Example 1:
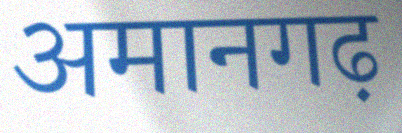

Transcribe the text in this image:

अमानगढ़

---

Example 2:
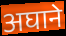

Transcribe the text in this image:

अघाने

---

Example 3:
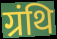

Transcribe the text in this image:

ग्रंथि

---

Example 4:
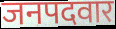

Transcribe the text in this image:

जनपदवार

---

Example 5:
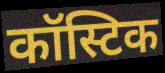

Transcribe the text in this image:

कॉस्टिक